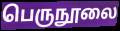
பெருநூலை